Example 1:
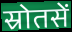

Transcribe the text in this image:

स्रोतसें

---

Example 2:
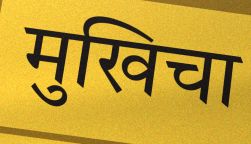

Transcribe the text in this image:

मुखिचा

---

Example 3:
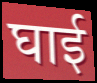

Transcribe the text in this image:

घाई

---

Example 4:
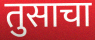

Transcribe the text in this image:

तुसाचा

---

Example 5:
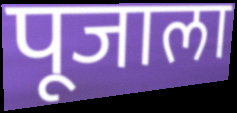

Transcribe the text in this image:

पूजाला